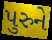
પુરુને